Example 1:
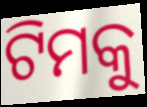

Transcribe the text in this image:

ଟିମକୁ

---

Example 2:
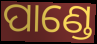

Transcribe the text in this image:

ପାଣ୍ଡେ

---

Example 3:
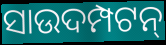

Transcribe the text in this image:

ସାଉଦମ୍ପଟନ୍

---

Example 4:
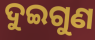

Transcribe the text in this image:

ଦୁଇଗୁଣ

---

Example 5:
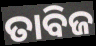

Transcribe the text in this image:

ତାବିଜ